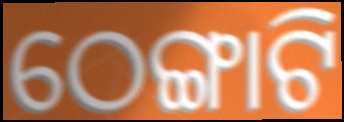
ଠେଙ୍ଗାଟି